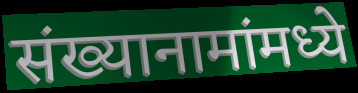
संख्यानामांमध्ये